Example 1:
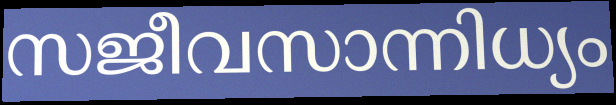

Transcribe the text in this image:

സജീവസാന്നിധ്യം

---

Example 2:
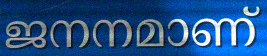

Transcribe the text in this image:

ജനനമാണ്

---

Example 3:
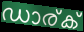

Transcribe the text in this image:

ഡാര്ക്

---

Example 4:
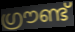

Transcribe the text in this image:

ഗ്രൗണ്ട്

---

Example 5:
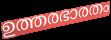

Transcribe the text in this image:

ഉത്തരഭാരതം